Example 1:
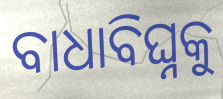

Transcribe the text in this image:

ବାଧାବିଘ୍ନକୁ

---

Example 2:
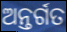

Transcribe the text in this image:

ଅନ୍ତର୍ଗତ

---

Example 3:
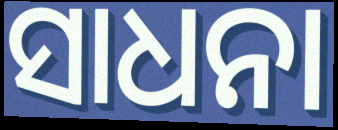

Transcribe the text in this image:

ସାଧନା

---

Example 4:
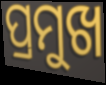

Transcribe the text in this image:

ପ୍ରମୁଖ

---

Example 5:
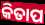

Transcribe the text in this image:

କିତାପ